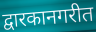
द्वारकानगरीत